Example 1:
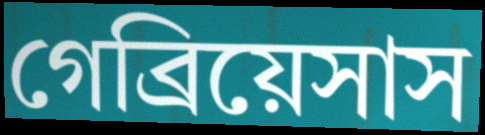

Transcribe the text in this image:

গেব্রিয়েসাস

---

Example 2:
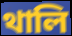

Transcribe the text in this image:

থালি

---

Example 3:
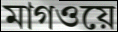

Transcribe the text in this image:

মাগওয়ে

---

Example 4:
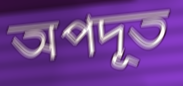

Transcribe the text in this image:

অপদূত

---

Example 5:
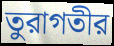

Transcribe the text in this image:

তুরাগতীর